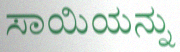
ಸಾಯಿಯನ್ನು